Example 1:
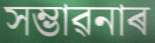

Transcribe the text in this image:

সম্ভাৱনাৰ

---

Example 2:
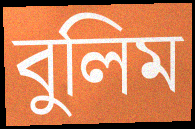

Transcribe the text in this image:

বুলিম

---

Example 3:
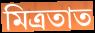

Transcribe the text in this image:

মিত্ৰতাত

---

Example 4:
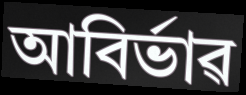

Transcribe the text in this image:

আবিৰ্ভাৱ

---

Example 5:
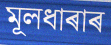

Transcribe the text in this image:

মূলধাৰাৰ